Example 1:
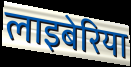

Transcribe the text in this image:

लाइबेरिया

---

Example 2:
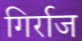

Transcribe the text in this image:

गिर्राज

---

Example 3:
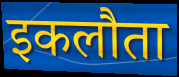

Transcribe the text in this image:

इकलौता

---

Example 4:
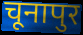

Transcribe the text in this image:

चूनापुर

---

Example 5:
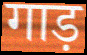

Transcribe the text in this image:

गाड़